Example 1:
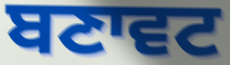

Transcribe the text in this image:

ਬਣਾਵਟ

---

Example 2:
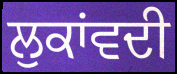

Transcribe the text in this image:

ਲੁਕਾਂਵਦੀ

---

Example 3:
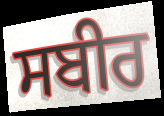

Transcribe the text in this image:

ਸਬੀਰ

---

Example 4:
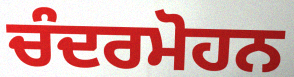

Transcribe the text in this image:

ਚੰਦਰਮੋਹਨ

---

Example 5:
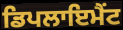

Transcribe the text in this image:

ਡਿਪਲਾਇਮੈਂਟ